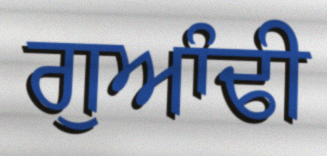
ਗੁਆੰਢੀ